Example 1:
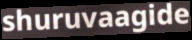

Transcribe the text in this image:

shuruvaagide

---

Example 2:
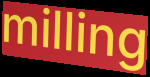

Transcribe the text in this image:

milling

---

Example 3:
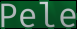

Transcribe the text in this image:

Pele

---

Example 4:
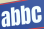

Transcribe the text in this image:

abbc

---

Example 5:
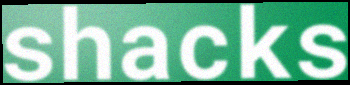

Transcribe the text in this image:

shacks